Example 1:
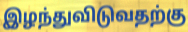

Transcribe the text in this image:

இழந்துவிடுவதற்கு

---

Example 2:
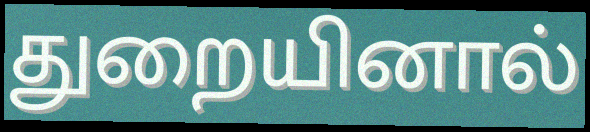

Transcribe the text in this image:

துறையினால்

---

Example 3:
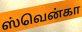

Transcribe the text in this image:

ஸ்வென்கா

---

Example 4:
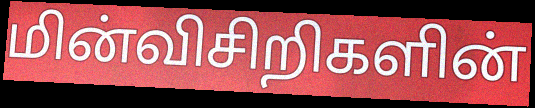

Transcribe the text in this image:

மின்விசிறிகளின்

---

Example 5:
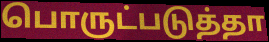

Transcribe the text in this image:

பொருட்படுத்தா